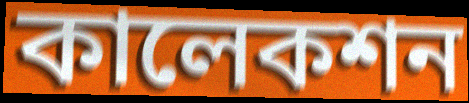
কালেকশন